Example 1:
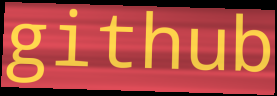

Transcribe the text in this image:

github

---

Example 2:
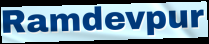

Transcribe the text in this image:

Ramdevpur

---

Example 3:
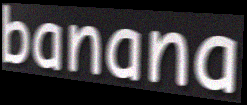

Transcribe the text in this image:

banana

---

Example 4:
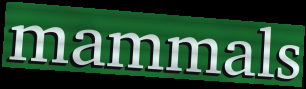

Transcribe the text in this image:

mammals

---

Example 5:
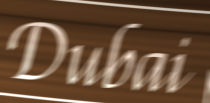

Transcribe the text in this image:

Dubai